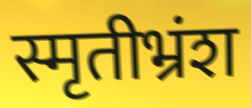
स्मृतीभ्रंश